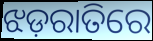
ଝଡ଼ରାତିରେ